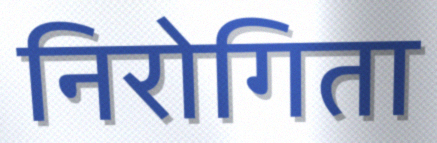
निरोगिता